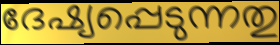
ദേഷ്യപ്പെടുന്നതു